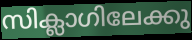
സിക്ലാഗിലേക്കു